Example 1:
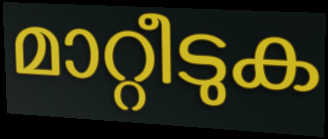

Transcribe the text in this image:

മാറ്റീടുക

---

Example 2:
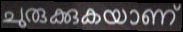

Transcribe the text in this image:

ചുരുക്കുകയാണ്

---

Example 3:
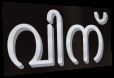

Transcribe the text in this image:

വിന്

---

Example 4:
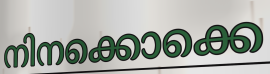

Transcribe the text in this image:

നിനക്കൊക്കെ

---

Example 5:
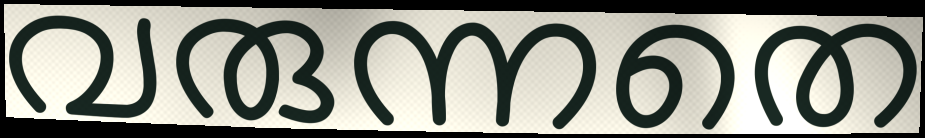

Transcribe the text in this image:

വരുന്നതെ